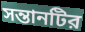
সন্তানটির